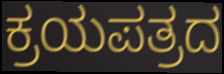
ಕ್ರಯಪತ್ರದ